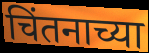
चिंतनाच्या